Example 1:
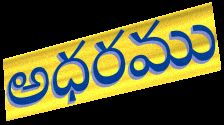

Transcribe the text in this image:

అధరము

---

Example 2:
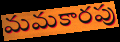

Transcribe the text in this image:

మమకారపు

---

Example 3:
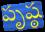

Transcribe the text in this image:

పృష్ఠ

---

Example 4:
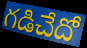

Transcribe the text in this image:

గడిచేదో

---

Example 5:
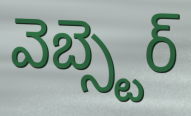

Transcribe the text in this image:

వెబ్స్టెర్